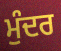
ਮੁੰਦਰ